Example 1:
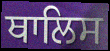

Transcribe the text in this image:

ਥਾਲਿਸ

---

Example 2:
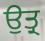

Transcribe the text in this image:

ਉਤ੍ਰ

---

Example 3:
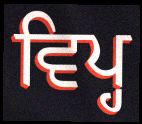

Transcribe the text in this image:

ਵਿਪ੍ਹ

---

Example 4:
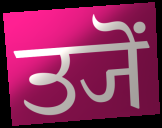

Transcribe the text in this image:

ਤ੍ਯੋਂ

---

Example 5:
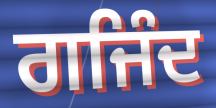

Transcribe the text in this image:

ਗਜਿੰਦ